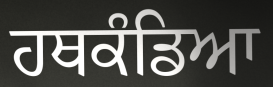
ਹਥਕੰਡਿਆ